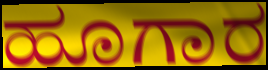
ಹೂಗಾರ